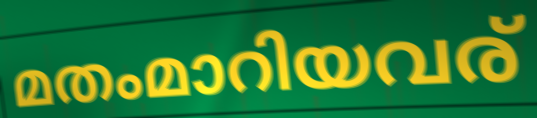
മതംമാറിയവര്